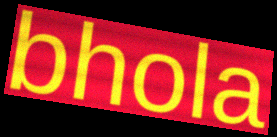
bhola